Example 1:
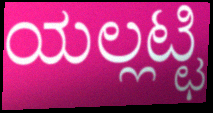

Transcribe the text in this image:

ಯಲ್ಲಟ್ಟಿ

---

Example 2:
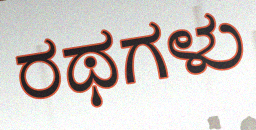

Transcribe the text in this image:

ರಥಗಳು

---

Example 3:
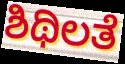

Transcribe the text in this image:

ಶಿಥಿಲತೆ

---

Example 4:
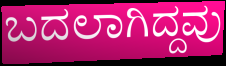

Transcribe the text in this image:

ಬದಲಾಗಿದ್ದವು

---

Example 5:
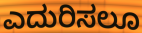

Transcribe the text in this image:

ಎದುರಿಸಲೂ